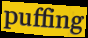
puffing